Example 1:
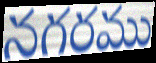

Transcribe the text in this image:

నగరము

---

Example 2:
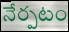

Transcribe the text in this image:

నేర్పటం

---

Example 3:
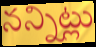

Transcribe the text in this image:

నన్నిట్లు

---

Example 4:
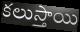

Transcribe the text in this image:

కలుస్తాయి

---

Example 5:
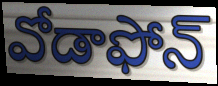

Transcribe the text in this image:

వోడాఫోన్